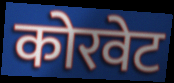
कोरवेट